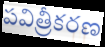
పవిత్రీకరణ